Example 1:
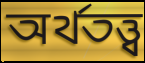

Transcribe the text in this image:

অৰ্থতত্ত্ব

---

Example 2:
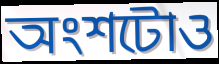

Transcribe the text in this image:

অংশটোও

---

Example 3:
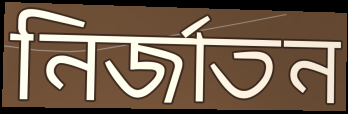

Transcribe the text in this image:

নিৰ্জাতন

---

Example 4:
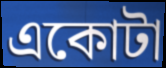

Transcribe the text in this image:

একোটা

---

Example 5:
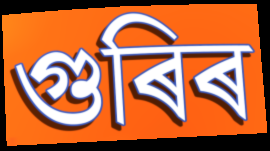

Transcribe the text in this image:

গুৰিৰ